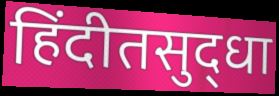
हिंदीतसुद्धा